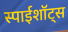
स्पाईशॉट्स